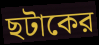
ছটাকের